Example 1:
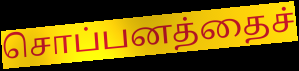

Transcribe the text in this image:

சொப்பனத்தைச்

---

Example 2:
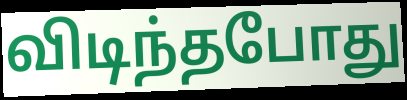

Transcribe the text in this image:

விடிந்தபோது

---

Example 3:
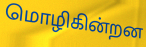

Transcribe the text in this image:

மொழிகின்றன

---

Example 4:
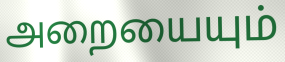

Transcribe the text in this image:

அறையையும்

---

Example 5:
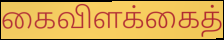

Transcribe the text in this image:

கைவிளக்கைத்